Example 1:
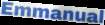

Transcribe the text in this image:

Emmanual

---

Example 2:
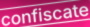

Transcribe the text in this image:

confiscate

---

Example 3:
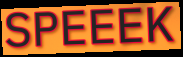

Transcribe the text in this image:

SPEEEK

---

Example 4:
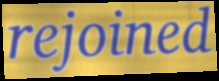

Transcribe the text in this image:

rejoined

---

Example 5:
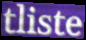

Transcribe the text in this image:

tliste